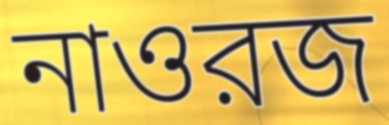
নাওরজ